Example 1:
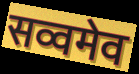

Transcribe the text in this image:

सव्वमेव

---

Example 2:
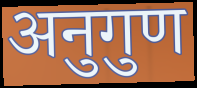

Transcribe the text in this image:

अनुगुण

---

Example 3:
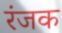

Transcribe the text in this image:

रंजक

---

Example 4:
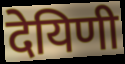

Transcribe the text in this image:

देयिणी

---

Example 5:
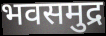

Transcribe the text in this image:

भवसमुद्र